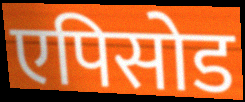
एपिसोड